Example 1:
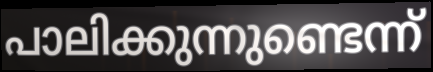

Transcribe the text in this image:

പാലിക്കുന്നുണ്ടെന്ന്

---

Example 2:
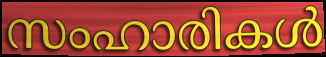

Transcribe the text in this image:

സംഹാരികൾ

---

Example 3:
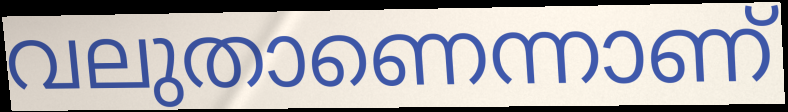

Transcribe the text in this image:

വലുതാണെന്നാണ്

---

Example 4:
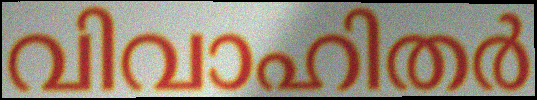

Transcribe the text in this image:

വിവാഹിതർ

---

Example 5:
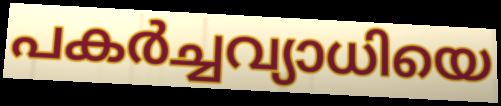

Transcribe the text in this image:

പകർച്ചവ്യാധിയെ